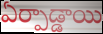
ఏర్పాడ్డాయి